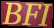
BFI